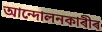
আন্দোলনকাৰীৰ